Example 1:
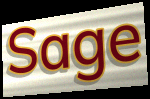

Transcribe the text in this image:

Sage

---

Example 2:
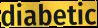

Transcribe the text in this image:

diabetic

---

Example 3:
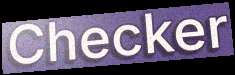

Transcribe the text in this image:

Checker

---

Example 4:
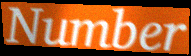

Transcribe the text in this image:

Number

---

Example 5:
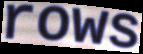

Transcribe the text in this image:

rows